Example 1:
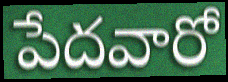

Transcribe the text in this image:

పేదవారో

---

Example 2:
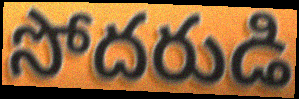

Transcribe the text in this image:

సోదరుడి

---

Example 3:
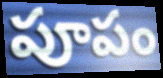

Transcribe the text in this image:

పూపం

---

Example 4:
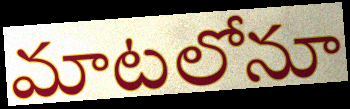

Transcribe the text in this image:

మాటలోనూ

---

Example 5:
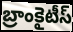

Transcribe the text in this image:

బ్రాంకైటీస్